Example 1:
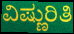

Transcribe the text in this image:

ವಿಷ್ಣುರಿತಿ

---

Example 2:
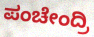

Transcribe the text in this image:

ಪಂಚೇಂದ್ರಿ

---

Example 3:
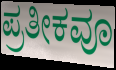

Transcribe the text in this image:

ಪ್ರತೀಕವೂ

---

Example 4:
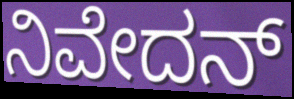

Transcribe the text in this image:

ನಿವೇದನ್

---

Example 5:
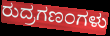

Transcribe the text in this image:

ರುದ್ರಗಣಂಗಳು